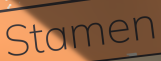
Stamen